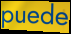
puede